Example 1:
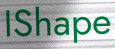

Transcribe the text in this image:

IShape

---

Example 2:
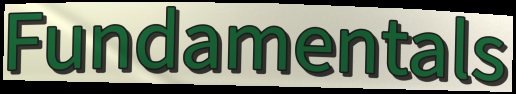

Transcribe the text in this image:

Fundamentals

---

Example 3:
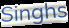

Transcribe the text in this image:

Singhs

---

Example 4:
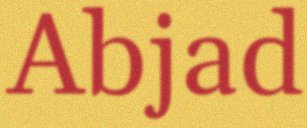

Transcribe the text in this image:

Abjad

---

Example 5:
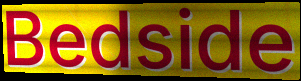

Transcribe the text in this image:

Bedside